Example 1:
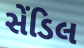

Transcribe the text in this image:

સેંડિલ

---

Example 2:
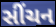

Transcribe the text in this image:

સીંચન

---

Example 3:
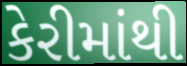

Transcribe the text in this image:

કેરીમાંથી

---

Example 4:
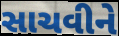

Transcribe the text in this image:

સાચવીને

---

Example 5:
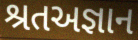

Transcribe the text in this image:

શ્રતઅજ્ઞાન